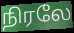
நிரலே